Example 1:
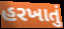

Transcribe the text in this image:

હરખાતું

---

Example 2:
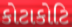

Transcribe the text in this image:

કોટાકોટિ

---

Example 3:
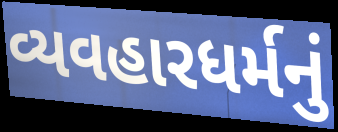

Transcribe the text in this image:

વ્યવહારધર્મનું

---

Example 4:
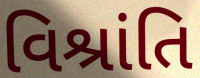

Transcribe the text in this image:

વિશ્રાંતિ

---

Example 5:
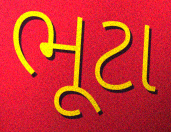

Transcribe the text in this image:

ભૂટા